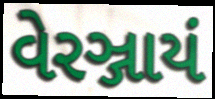
વેરઞ્જાયં